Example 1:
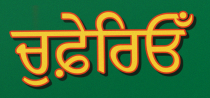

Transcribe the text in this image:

ਚੁਫ਼ੇਰਿਓਁ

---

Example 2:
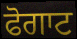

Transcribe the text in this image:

ਫੋਗਾਟ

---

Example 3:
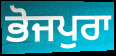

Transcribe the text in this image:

ਭੋਜਪੁਰਾ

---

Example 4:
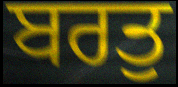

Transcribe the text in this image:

ਬਰਤੁ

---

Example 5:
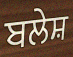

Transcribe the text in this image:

ਬਲੇਸ਼